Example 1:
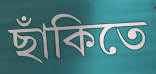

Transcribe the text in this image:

ছাঁকিতে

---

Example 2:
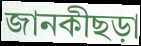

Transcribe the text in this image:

জানকীছড়া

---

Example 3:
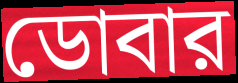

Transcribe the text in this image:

ডোবার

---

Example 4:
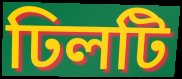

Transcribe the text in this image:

ঢিলটি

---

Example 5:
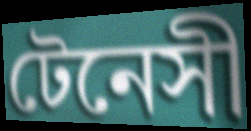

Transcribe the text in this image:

টেনেসী